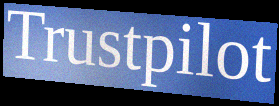
Trustpilot